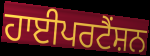
ਹਾਈਪਰਟੈਂਸ਼ਨ